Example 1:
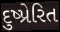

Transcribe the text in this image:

દુષ્પ્રેરિત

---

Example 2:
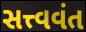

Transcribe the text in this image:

સત્ત્વવંત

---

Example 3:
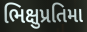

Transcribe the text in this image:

ભિક્ષુપ્રતિમા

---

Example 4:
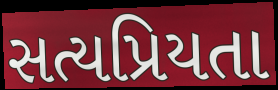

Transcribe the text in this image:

સત્યપ્રિયતા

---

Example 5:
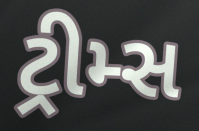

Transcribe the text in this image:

ટ્રીમ્સ